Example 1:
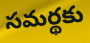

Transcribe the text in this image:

సమర్థకు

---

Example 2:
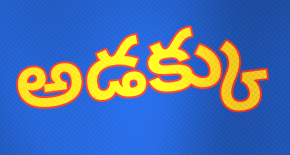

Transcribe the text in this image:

అడక్కు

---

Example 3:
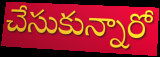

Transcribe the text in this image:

చేసుకున్నారో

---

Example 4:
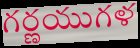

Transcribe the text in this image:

గర్ణయుగళ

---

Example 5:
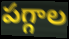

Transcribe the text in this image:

పగ్గాల